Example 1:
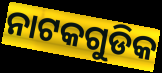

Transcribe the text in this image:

ନାଟକଗୁଡିକ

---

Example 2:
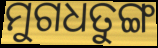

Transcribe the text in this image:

ମୁଗଧତୁଙ୍ଗ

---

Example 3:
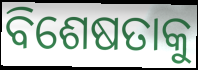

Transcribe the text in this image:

ବିଶେଷତାକୁ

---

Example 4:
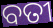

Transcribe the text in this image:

ବତୀ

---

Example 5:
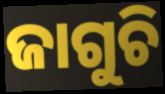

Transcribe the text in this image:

ଜାଗୁଚି